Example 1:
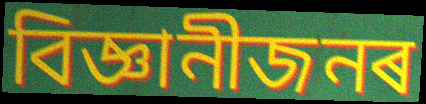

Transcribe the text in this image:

বিজ্ঞানীজনৰ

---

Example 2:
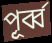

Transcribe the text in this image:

পূৰ্ব্ব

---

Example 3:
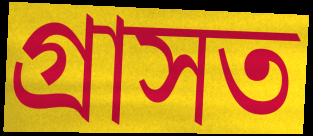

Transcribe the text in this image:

গ্ৰাসত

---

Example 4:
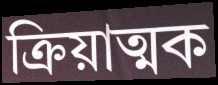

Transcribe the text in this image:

ক্ৰিয়াত্মক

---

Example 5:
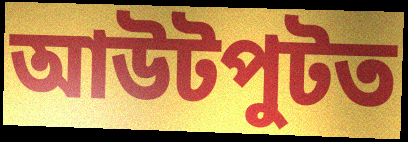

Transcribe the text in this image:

আউটপুটত